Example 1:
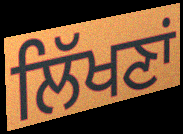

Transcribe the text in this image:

ਲਿੱਖਣਾਂ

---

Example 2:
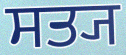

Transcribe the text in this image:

ਸਤ੍ਯ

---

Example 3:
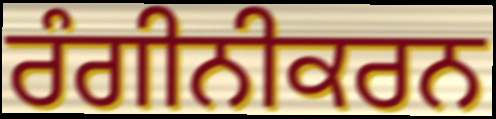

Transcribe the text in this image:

ਰੰਗੀਨੀਕਰਨ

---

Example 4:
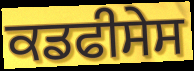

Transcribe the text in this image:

ਕਡਫੀਸੇਸ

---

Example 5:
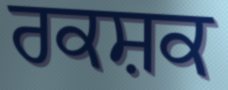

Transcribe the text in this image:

ਰਕਸ਼ਕ